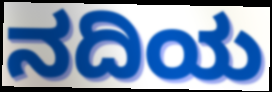
ನದಿಯ